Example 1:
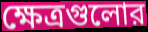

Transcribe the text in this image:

ক্ষেত্রগুলোর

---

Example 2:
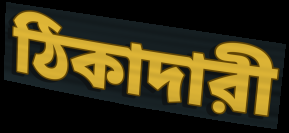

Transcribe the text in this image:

ঠিকাদারী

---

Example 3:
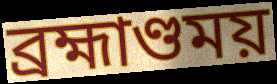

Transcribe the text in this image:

ব্রহ্মাণ্ডময়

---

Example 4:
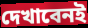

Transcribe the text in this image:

দেখাবেনই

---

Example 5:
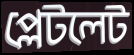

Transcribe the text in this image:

প্লেটলেট